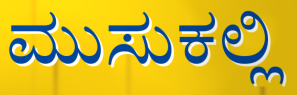
ಮುಸುಕಲ್ಲಿ